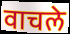
वाचले